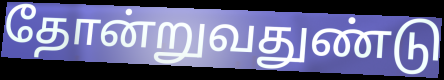
தோன்றுவதுண்டு